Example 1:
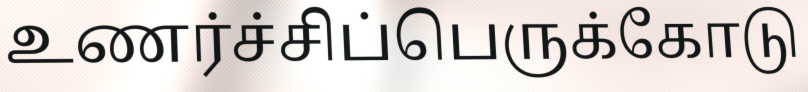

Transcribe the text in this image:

உணர்ச்சிப்பெருக்கோடு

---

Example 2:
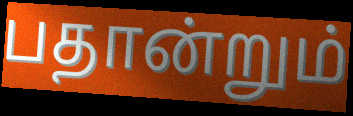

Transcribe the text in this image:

பதான்றும்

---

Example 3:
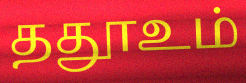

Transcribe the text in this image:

ததூஉம்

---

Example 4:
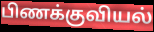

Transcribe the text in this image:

பிணக்குவியல்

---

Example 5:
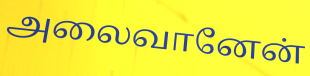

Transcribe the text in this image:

அலைவானேன்